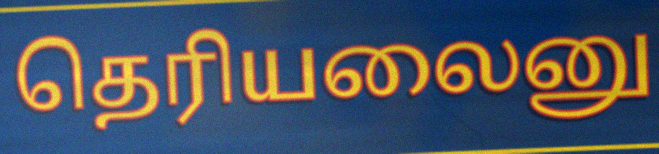
தெரியலைனு